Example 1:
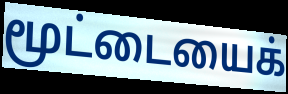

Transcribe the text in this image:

மூட்டையைக்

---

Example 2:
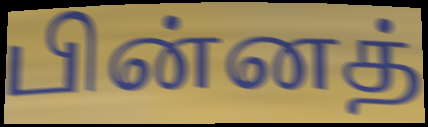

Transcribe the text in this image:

பின்னத்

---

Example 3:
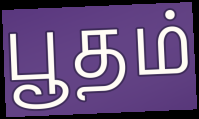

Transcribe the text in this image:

பூதம்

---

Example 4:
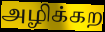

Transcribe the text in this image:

அழிக்கற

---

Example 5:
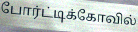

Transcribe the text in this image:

போர்ட்டிக்கோவில்